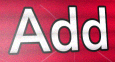
Add